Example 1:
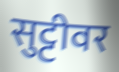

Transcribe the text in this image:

सुट्टीवर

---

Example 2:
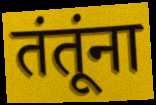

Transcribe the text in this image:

तंतूंना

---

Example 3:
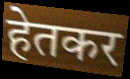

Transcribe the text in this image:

हेतकर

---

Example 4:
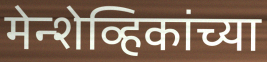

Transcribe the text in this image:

मेन्शेव्हिकांच्या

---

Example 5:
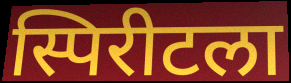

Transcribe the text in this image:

स्पिरीटला